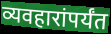
व्यवहारांपर्यंत